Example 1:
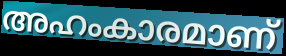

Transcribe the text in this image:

അഹംകാരമാണ്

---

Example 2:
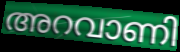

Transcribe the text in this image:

അറവാണി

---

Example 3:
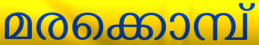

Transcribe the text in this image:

മരക്കൊമ്പ്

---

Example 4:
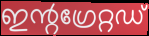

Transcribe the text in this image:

ഇന്റഗ്രേറ്റഡ്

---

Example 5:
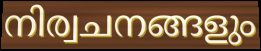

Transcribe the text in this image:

നിര്വചനങ്ങളും